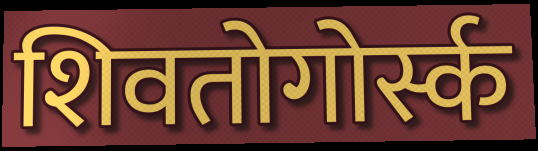
शिवतोगोर्स्क